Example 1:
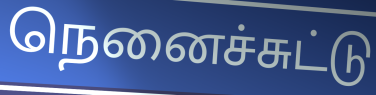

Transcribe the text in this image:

நெனைச்சுட்டு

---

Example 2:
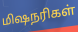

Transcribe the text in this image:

மிஷநரிகள்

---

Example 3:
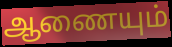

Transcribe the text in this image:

ஆணையும்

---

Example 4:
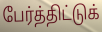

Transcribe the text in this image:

பேர்த்திட்டுக்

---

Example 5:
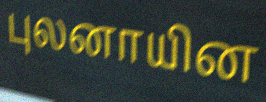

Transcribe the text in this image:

புலனாயின